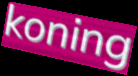
koning